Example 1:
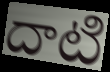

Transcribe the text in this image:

దాటి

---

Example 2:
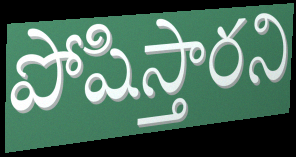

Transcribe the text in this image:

పోషిస్తారని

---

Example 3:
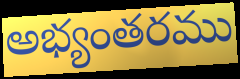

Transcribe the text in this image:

అభ్యంతరము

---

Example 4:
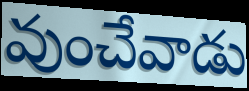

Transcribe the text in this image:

వుంచేవాడు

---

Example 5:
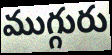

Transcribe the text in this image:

ముగ్గురు